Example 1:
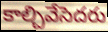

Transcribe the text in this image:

కాల్చివేసెదరు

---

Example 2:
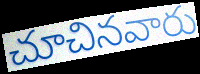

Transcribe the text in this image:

చూచినవారు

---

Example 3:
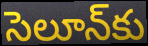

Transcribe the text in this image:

సెలూన్‌కు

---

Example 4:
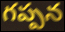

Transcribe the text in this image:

గప్పన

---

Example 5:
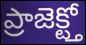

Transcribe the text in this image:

ప్రాజెక్ట్తో